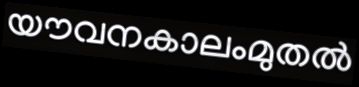
യൗവനകാലംമുതൽ